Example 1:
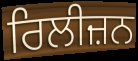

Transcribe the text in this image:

ਰਿਲੀਜ਼ਨ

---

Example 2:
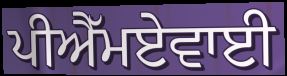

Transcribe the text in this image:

ਪੀਐੱਮਏਵਾਈ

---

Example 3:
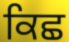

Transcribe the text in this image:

ਕਿਛ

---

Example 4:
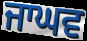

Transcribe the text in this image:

ਜਾਘਵ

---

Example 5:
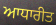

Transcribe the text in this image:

ਆਧਾਰੀਤ